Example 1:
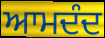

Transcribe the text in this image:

ਆਮਦੰਦ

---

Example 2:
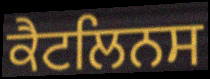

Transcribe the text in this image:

ਕੈਟਲਿਨਸ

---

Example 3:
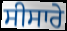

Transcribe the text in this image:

ਸੀਸਾਰੇ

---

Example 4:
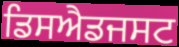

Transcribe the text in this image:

ਡਿਸਐਡਜਸਟ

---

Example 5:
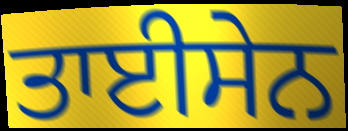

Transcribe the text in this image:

ਤਾਈਸੇਨ